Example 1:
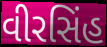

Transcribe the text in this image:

વીરસિંહ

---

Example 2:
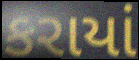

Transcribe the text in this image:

કરાયાં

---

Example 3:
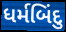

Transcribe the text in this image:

ધર્મબિંદુ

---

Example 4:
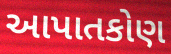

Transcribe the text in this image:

આપાતકોણ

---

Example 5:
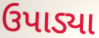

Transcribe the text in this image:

ઉપાડ્યા